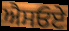
ਐਸਓਏ